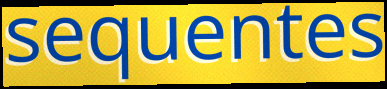
sequentes